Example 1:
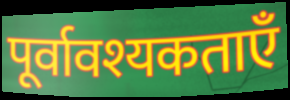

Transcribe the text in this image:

पूर्वावश्यकताएँ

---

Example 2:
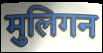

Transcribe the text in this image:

मुलिगन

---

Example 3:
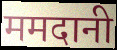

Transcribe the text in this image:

ममदानी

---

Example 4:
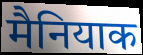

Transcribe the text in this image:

मैनियाक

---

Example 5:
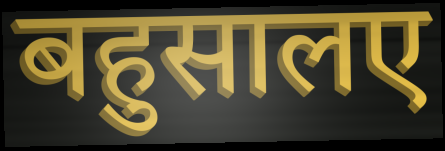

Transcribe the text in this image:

बहुसालए